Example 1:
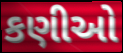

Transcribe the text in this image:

કણીઓ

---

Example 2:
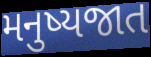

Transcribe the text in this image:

મનુષ્યજાત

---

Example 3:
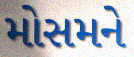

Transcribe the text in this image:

મોસમને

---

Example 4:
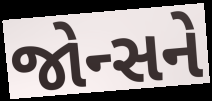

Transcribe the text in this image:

જોન્સને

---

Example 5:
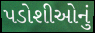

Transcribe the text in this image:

પડોશીઓનું